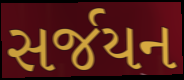
સર્જયન